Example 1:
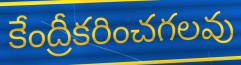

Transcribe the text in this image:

కేంద్రీకరించగలవు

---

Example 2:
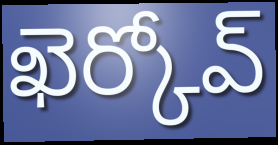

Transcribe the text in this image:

ఖెర్కోవ్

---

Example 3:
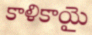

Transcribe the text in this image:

కాళికాయై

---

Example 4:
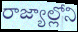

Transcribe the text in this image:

రాజ్యాల్లోని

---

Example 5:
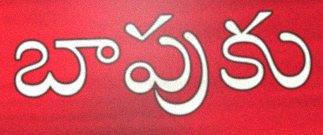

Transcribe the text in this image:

బాపుకు